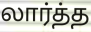
லார்த்த